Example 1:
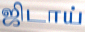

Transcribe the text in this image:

ஜிடாய்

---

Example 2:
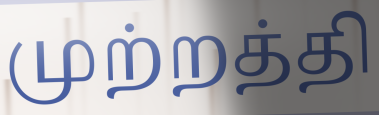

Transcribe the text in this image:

முற்றத்தி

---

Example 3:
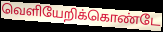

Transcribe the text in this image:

வெளியேறிக்கொண்டே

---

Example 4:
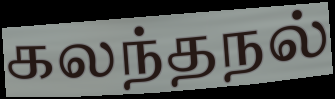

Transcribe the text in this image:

கலந்தநல்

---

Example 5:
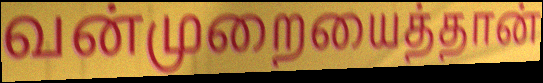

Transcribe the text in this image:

வன்முறையைத்தான்